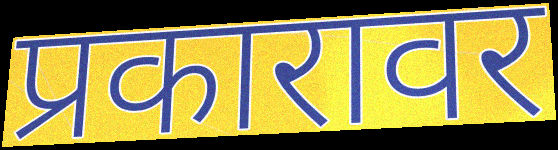
प्रकारावर